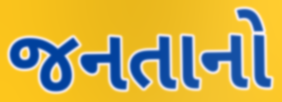
જનતાનો